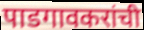
पाडगावकरांची